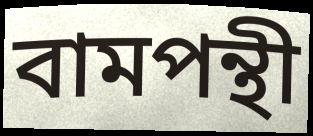
বামপন্থী